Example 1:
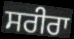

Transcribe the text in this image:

ਸਰੀਰਾ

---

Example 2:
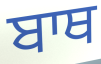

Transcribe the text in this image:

ਬਾਥ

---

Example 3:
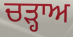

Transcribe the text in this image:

ਚੜ੍ਹਾਅ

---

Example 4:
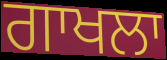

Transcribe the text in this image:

ਗਾਖਲਾ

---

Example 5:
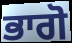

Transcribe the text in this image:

ਭਾਗੋ